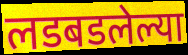
लडबडलेल्या